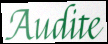
Audite